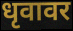
धृवावर